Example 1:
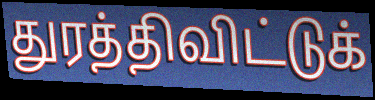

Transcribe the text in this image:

துரத்திவிட்டுக்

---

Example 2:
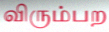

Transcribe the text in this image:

விரும்பற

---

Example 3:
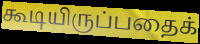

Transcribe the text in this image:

கூடியிருப்பதைக்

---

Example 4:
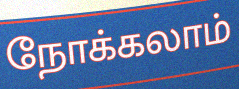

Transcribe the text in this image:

நோக்கலாம்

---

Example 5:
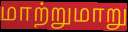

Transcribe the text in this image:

மாற்றுமாறு